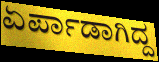
ಏರ್ಪಾಡಾಗಿದ್ದ